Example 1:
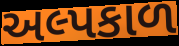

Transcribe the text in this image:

અલ્પકાળ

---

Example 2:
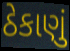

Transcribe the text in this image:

ઠેકાણું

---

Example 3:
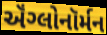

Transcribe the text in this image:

ઍંગ્લોનૉર્મન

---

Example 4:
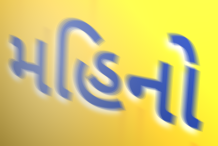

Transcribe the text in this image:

મહિનો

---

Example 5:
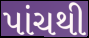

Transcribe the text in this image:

પાંચથી